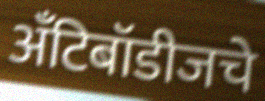
अँटिबॉडीजचे